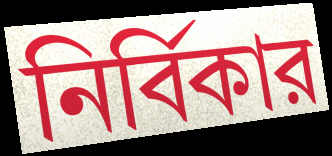
নির্বিকার